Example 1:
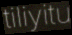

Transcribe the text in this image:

tiliyitu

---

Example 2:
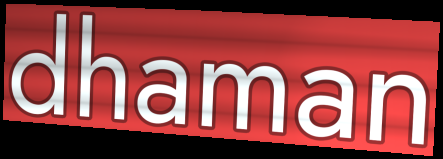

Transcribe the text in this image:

dhaman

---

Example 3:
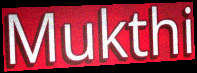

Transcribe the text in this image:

Mukthi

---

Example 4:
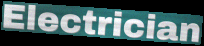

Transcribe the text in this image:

Electrician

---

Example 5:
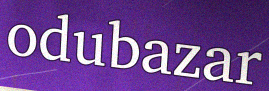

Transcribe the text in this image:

odubazar